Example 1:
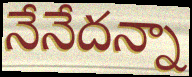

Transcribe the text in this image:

నేనేదన్నా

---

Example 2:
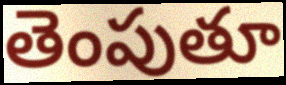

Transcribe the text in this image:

తెంపుతూ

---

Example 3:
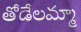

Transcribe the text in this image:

తోడేలమ్మా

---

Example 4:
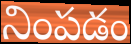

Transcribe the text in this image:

నింపడం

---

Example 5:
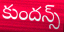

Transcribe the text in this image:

కుందన్స్